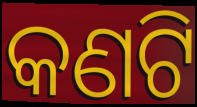
କଣଟି